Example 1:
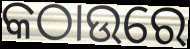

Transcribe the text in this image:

କଠାଉରେ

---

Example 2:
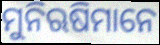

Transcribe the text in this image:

ମୁନିଋଷିମାନେ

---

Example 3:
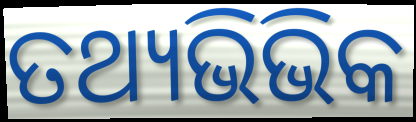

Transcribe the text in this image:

ତଥ୍ୟଭିଭିକ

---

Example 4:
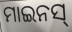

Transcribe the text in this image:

ମାଇନସ୍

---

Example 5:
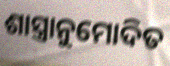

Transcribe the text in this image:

ଶାସ୍ତ୍ରାନୁମୋଦିତ